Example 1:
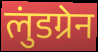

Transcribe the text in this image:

लुंडग्रेन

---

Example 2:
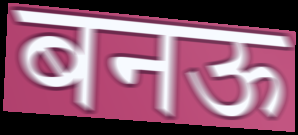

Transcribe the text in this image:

बनऊ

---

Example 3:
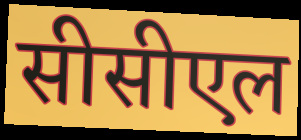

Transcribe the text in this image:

सीसीएल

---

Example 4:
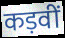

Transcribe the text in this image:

कड़वीं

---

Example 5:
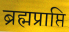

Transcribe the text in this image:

ब्रह्मप्राप्ति